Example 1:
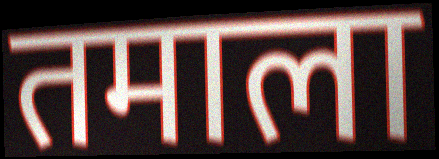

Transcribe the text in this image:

तमाला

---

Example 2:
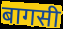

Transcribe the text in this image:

बागसी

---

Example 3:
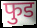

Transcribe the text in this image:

फुड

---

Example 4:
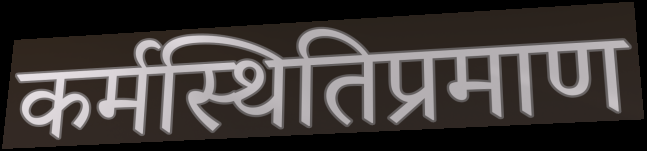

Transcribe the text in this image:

कर्मस्थितिप्रमाण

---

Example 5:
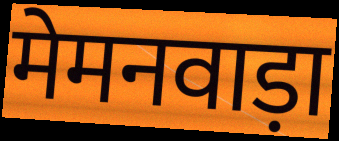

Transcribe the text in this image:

मेमनवाड़ा